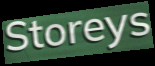
Storeys